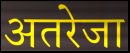
अतरेजा